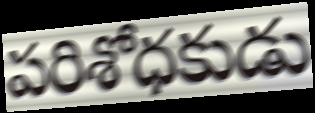
పరిశోధకుడు